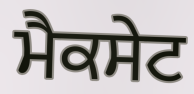
ਮੈਕਸੇਟ